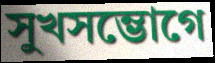
সুখসম্ভোগে